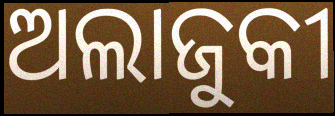
ଅଲାଜୁକୀ